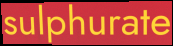
sulphurate